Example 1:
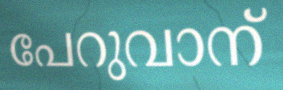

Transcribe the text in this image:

പേറുവാന്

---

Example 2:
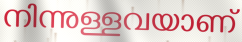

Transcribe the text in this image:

നിന്നുള്ളവയാണ്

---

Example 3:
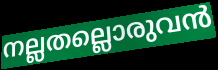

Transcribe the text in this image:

നല്ലതല്ലൊരുവൻ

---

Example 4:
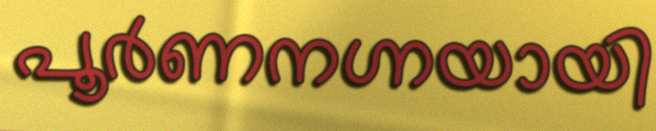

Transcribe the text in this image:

പൂർണനഗ്നയായി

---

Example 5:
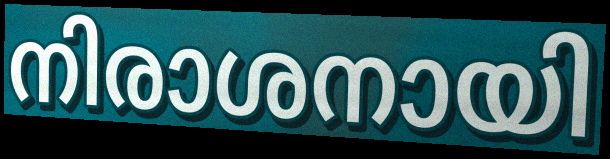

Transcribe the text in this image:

നിരാശനായി